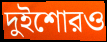
দুইশোরও